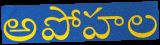
అపోహల